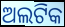
ଅଲଟିକ